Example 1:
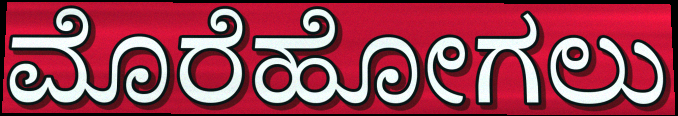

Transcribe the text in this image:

ಮೊರೆಹೋಗಲು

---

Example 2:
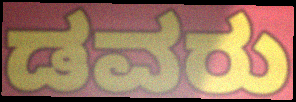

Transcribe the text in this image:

ಡವರು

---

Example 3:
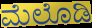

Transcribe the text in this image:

ಮೆಲೊಡಿ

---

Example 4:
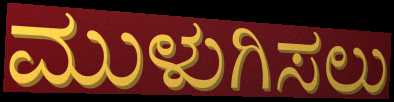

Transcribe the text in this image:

ಮುಳುಗಿಸಲು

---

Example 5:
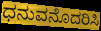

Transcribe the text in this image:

ಧನುವನೊದರಿಸಿ